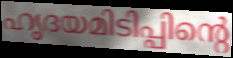
ഹൃദയമിടിപ്പിന്റെ